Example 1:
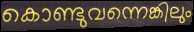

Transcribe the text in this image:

കൊണ്ടുവന്നെങ്കിലും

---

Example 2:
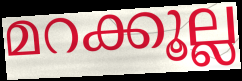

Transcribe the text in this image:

മറക്കൂല്ല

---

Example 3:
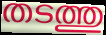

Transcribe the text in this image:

തടത്തു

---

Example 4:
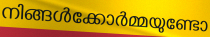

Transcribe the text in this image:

നിങ്ങൾക്കോർമ്മയുണ്ടോ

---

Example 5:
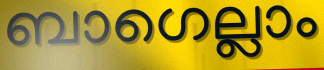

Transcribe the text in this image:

ബാഗെല്ലാം